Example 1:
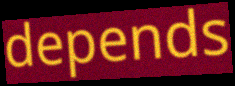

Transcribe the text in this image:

depends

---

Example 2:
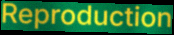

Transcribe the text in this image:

Reproduction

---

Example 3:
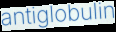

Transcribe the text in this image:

antiglobulin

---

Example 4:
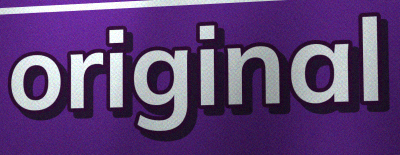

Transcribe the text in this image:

original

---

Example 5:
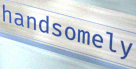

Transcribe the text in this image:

handsomely